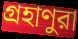
গ্রহাণুরা